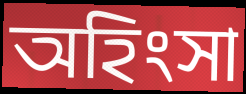
অহিংসা